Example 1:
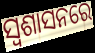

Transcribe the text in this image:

ସ୍ଵଶାସନରେ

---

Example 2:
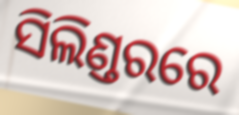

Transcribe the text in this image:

ସିଲିଣ୍ଡରରେ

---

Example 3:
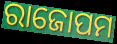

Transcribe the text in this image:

ରାଜୋପମ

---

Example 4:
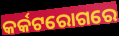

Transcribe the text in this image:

କର୍କଟରୋଗରେ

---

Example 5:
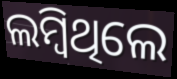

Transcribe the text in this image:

ଲମ୍ବିଥିଲେ